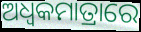
ଅଧ୍ଵକମାତ୍ରାରେ